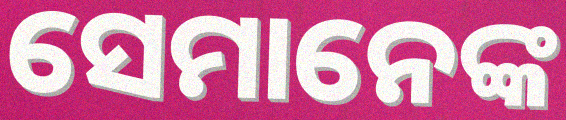
ସେମାନେଙ୍କ